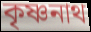
কৃষ্ণনাথ